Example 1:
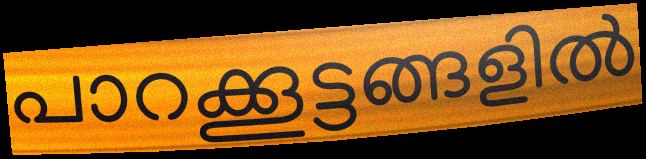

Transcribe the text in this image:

പാറക്കൂട്ടങ്ങളിൽ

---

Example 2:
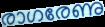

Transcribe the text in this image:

രാഗരേണു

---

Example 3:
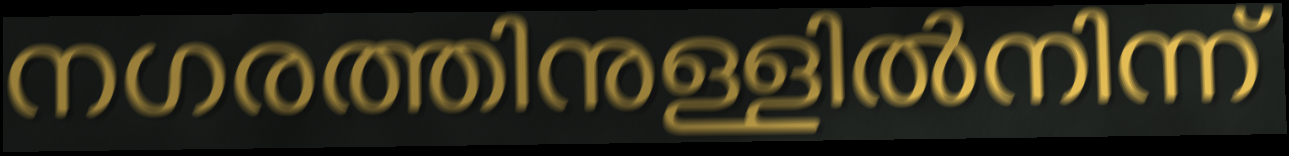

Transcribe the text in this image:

നഗരത്തിനുള്ളിൽനിന്ന്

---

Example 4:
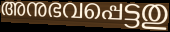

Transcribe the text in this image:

അനുഭവപ്പെട്ടതു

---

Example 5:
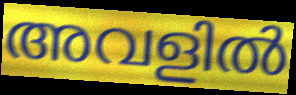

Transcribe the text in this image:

അവളിൽ